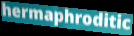
hermaphroditic